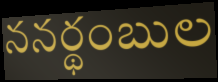
ననర్థంబుల